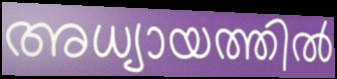
അധ്യായത്തിൽ